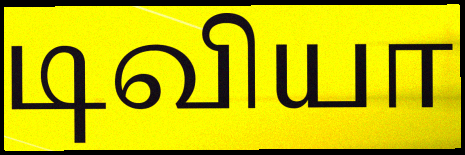
டிவியா